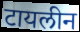
टायलीन